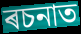
ৰচনাত